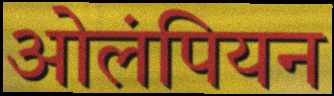
ओलंपियन